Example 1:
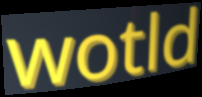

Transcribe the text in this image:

wotld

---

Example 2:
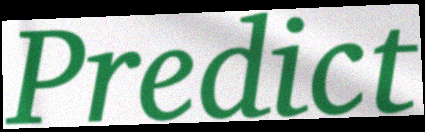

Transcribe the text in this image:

Predict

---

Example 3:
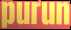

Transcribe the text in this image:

purun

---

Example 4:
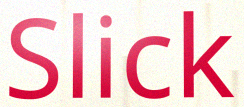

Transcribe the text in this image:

Slick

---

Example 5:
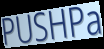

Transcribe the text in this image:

PUSHPa